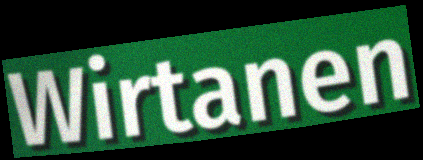
Wirtanen